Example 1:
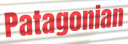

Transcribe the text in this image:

Patagonian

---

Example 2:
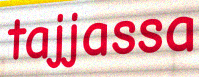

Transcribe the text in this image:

tajjassa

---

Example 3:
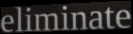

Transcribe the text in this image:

eliminate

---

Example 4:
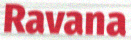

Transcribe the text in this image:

Ravana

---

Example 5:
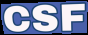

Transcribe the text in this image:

CSF